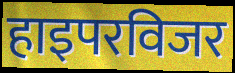
हाइपरविजर